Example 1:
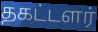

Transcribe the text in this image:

தகட்டளர்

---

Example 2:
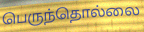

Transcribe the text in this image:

பெருந்தொல்லை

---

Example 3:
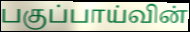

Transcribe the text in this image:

பகுப்பாய்வின்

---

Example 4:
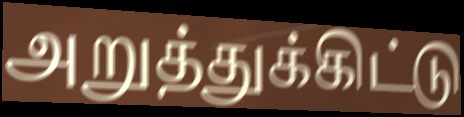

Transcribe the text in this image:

அறுத்துக்கிட்டு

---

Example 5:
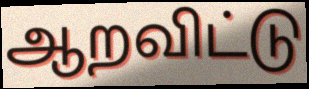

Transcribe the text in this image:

ஆறவிட்டு